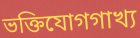
ভক্তিযোগগাখ্য